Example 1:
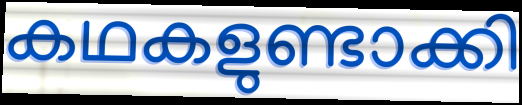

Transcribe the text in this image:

കഥകളുണ്ടാക്കി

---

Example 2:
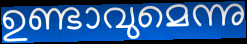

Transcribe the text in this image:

ഉണ്ടാവുമെന്നു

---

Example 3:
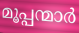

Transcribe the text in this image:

മൂപ്പന്മാർ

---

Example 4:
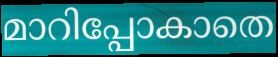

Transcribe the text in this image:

മാറിപ്പോകാതെ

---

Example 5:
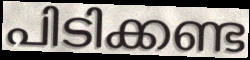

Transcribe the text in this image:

പിടിക്കണ്ട